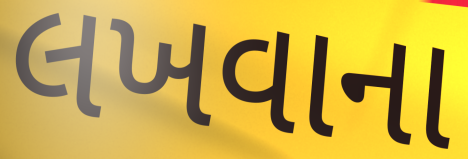
લખવાના